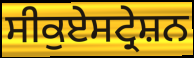
ਸੀਕੁਏਸਟ੍ਰੇਸ਼ਨ